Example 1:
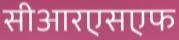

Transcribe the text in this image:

सीआरएसएफ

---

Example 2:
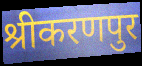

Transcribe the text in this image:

श्रीकरणपुर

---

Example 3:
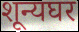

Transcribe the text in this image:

शून्यघर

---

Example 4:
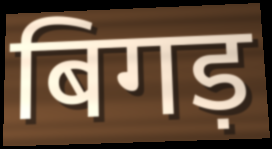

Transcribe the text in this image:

बिगड़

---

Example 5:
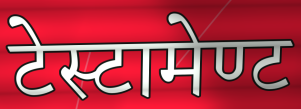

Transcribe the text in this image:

टेस्टामेण्ट